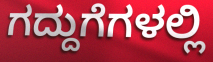
ಗದ್ದುಗೆಗಳಲ್ಲಿ